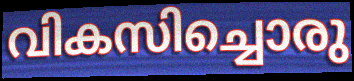
വികസിച്ചൊരു